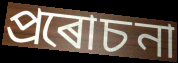
প্ৰৰোচনা